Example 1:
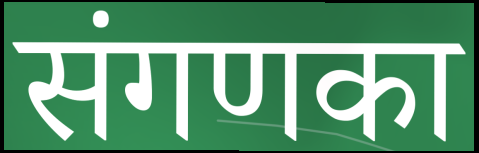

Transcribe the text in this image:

संगणका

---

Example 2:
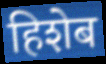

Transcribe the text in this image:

हिशेब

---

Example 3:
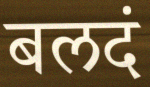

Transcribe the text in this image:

बलदं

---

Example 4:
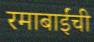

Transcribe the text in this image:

रमाबाईंची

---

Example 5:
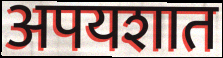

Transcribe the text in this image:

अपयशात